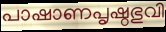
പാഷാണപൃഷ്ഠഭുവി